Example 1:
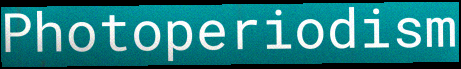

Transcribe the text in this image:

Photoperiodism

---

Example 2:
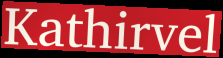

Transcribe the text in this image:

Kathirvel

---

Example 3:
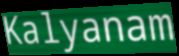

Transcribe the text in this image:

Kalyanam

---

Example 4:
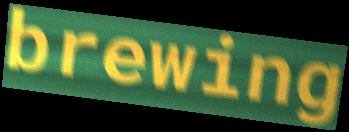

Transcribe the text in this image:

brewing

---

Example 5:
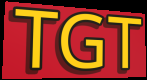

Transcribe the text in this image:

TGT